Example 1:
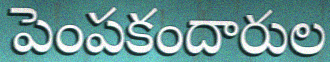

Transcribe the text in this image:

పెంపకందారుల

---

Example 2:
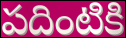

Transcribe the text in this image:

పదింటికి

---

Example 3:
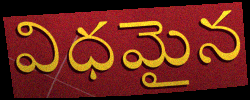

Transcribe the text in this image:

విధమైన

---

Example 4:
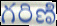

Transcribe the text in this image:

గరిణి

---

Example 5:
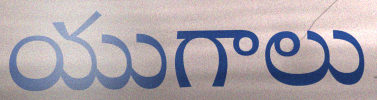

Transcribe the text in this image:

యుగాలు